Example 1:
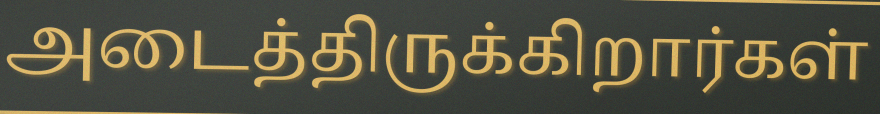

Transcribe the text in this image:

அடைத்திருக்கிறார்கள்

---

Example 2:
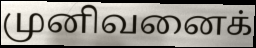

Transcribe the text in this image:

முனிவனைக்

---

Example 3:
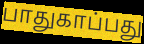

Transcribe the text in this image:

பாதுகாப்பது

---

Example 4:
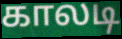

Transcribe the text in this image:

காலடி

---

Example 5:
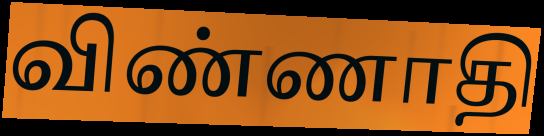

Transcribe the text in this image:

விண்ணாதி